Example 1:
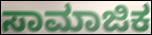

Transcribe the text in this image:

ಸಾಮಾಜಿಕ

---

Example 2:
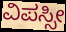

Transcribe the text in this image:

ವಿಪಸ್ಸೀ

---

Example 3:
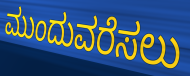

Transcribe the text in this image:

ಮುಂದುವರೆಸಲು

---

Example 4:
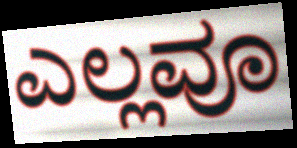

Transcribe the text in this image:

ಎಲ್ಲವೂ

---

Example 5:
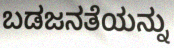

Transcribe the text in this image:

ಬಡಜನತೆಯನ್ನು